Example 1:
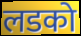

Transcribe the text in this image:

लडको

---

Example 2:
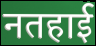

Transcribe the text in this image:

नतहाई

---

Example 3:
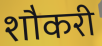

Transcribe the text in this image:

शौकरी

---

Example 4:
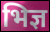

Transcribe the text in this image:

भिज्ञ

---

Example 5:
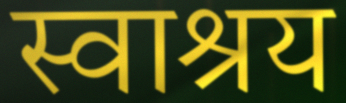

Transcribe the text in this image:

स्वाश्रय